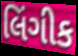
લિંગીક